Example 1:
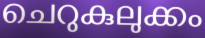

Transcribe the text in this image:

ചെറുകുലുക്കം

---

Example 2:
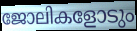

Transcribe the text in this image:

ജോലികളോടും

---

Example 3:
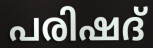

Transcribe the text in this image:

പരിഷദ്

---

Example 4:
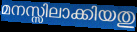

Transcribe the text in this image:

മനസ്സിലാക്കിയതു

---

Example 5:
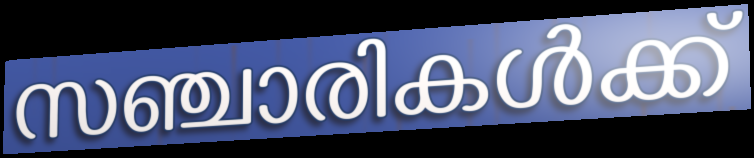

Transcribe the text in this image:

സഞ്ചാരികൾക്ക്